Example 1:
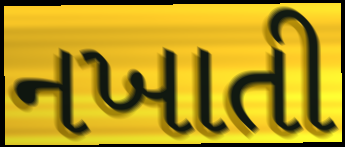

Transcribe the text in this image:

નખાતી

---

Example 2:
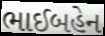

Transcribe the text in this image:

ભાઈબહેન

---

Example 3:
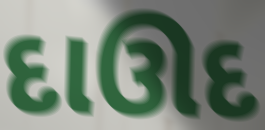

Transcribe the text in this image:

દાઊદ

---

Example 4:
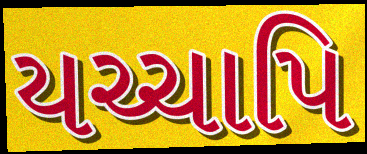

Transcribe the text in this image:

યચ્ચાપિ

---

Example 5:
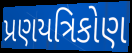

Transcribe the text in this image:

પ્રણયત્રિકોણ